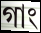
গাং